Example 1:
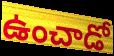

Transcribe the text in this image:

ఉంచాడో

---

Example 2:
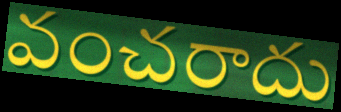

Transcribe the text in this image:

వంచరాదు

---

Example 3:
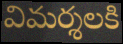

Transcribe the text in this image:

విమర్శలకి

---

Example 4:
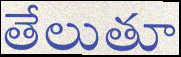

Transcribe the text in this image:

తేలుతూ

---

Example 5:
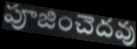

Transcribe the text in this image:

పూజించెదవు